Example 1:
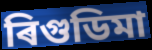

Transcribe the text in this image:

ৰিগুডিমা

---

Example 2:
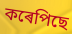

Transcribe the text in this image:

কৰেপিছে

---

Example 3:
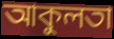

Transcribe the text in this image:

আকুলতা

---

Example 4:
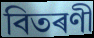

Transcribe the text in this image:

বিতৰণী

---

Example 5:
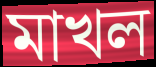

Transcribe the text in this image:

মাখল